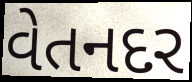
વેતનદર